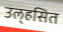
उल्हसित